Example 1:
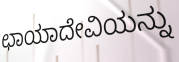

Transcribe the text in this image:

ಛಾಯಾದೇವಿಯನ್ನು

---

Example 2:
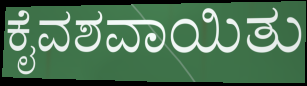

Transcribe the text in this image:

ಕೈವಶವಾಯಿತು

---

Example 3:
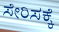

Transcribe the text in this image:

ಸೇರಿಸಕ್ಕೆ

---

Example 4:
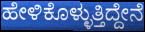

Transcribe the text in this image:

ಹೇಳಿಕೊಳ್ಳುತ್ತಿದ್ದೇನೆ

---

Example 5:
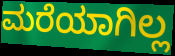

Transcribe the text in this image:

ಮರೆಯಾಗಿಲ್ಲ